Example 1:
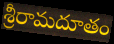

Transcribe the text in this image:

శ్రీరామదూతం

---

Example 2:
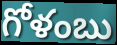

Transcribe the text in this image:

గోళంబు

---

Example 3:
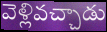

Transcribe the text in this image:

వెళ్లివచ్చాడు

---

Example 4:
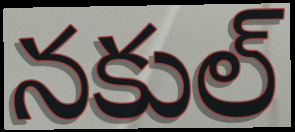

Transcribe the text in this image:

నకుల్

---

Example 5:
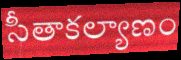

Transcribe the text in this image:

సీతాకల్యాణం